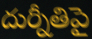
దుర్నీతిపై